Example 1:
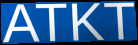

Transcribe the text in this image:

ATKT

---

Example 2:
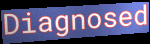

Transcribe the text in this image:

Diagnosed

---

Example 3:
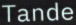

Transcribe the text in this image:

Tande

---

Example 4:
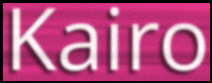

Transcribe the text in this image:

Kairo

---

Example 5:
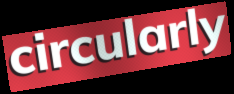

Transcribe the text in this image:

circularly